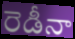
రెడీనా